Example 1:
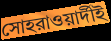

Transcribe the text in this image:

সোহরাওয়ার্দীই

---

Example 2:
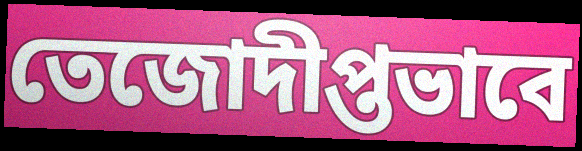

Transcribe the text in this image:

তেজোদীপ্তভাবে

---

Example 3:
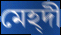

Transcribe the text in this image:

মেহ্দী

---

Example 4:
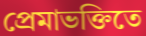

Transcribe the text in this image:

প্রেমাভক্তিতে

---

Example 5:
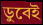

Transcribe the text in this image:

ডুবেই